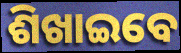
ଶିଖାଇବେ